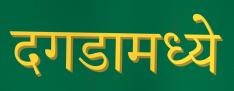
दगडामध्ये